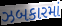
ઝબકારમાં